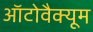
ऑटोवैक्यूम